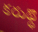
కరుథ్ధొ